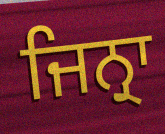
ਜਿਨ੍ਰਾ